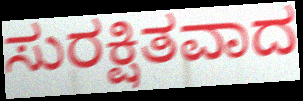
ಸುರಕ್ಷಿತವಾದ